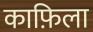
काफ़िला